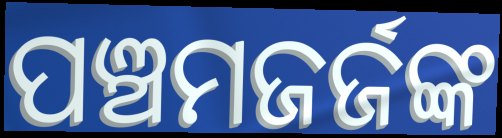
ପଞ୍ଚମଜର୍ଜଙ୍କ